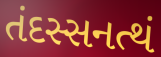
તંદસ્સનત્થં